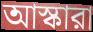
আস্কারা